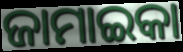
ଜାମାଇକା